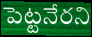
పెట్టనేరని